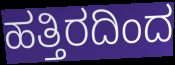
ಹತ್ತಿರದಿಂದ